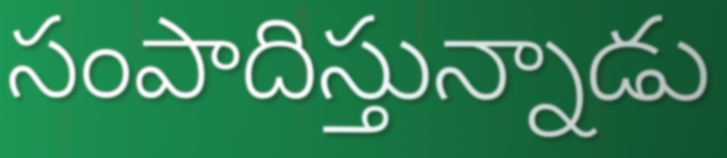
సంపాదిస్తున్నాడు